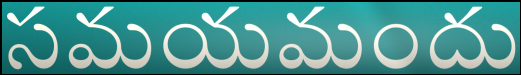
సమయమందు